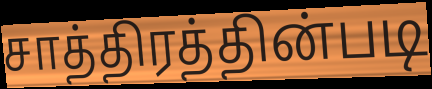
சாத்திரத்தின்படி